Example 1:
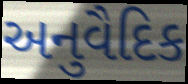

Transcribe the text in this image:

અનુવૈદિક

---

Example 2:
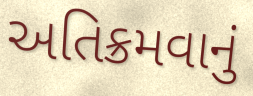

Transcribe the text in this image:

અતિક્રમવાનું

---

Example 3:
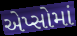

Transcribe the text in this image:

એપ્સોમાં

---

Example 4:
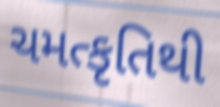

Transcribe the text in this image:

ચમત્કૃતિથી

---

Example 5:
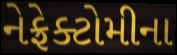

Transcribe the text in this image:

નેફ્રેક્ટોમીના